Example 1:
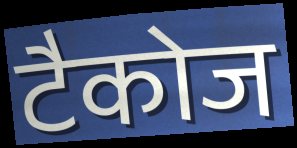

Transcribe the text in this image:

टैकोज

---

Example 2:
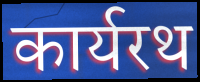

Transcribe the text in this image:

कार्यरथ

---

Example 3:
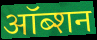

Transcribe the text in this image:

ऑब्शन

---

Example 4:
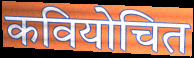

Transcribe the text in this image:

कवियोचित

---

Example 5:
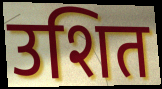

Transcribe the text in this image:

उशित